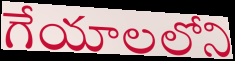
గేయాలలోని